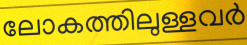
ലോകത്തിലുള്ളവർ